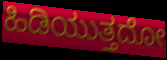
ಹಿಡಿಯುತ್ತದೋ